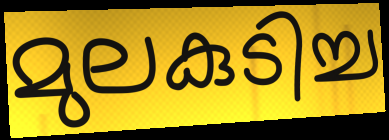
മുലകുടിച്ച